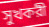
সুখকরী